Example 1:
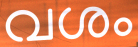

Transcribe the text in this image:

വശം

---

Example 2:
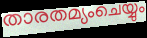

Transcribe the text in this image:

താരതമ്യംചെയ്യും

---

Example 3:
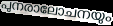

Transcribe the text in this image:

പുനരാലോചനയും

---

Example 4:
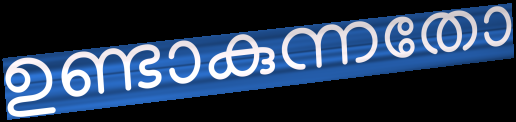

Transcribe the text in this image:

ഉണ്ടാകുന്നതോ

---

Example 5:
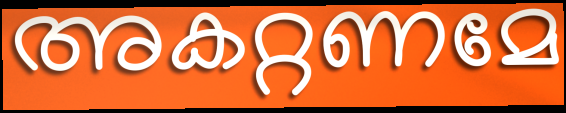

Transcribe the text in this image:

അകറ്റണമേ